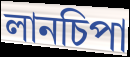
লানচিপা